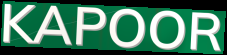
KAPOOR